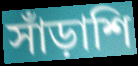
সাঁড়াশি